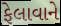
ફેલાવાને